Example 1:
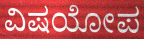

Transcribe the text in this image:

ವಿಷಯೋಪ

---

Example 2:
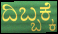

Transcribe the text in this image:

ದಿಬ್ಬಕ್ಕೆ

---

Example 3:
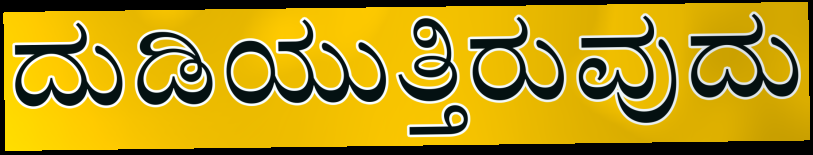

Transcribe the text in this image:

ದುಡಿಯುತ್ತಿರುವುದು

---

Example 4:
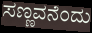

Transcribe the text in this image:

ಸಣ್ಣವನೆಂದು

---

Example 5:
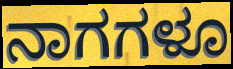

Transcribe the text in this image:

ನಾಗಗಳೂ